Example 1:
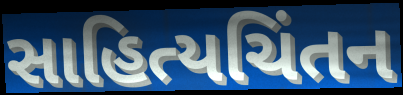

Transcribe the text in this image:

સાહિત્યચિંતન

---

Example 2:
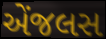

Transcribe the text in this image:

એંજલસ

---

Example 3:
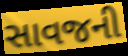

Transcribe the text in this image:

સાવજની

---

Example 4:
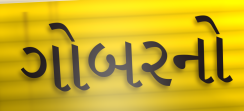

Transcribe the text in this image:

ગોબરનો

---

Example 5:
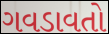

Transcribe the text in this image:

ગવડાવતો